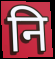
नि